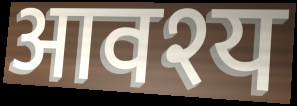
आवश्य